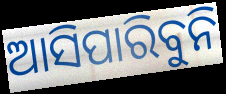
ଆସିପାରିବୁନି